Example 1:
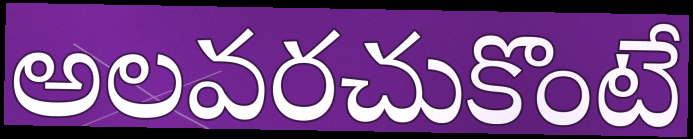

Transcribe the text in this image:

అలవరచుకొంటే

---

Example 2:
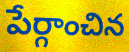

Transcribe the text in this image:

పేర్గాంచిన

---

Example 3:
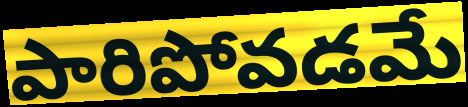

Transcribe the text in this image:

పారిపోవడమే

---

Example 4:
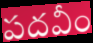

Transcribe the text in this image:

పదవీం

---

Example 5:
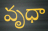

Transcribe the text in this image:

వృధా